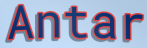
Antar